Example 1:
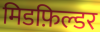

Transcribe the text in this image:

मिडफ़िल्डर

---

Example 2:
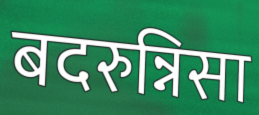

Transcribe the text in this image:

बदरुन्निसा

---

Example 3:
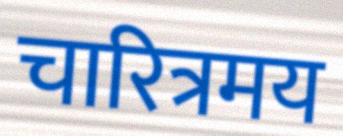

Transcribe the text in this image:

चारित्रमय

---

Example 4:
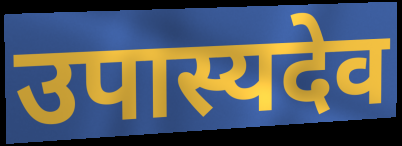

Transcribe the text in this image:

उपास्यदेव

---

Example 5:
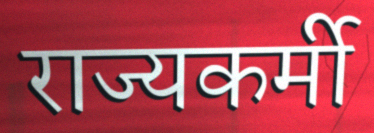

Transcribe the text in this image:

राज्यकर्मी